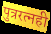
पुत्ररत्नही